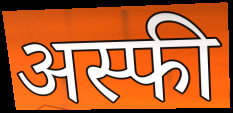
अस्फी